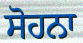
ਸੋਹਨਾ